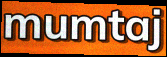
mumtaj